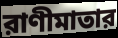
রাণীমাতার